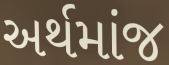
અર્થમાંજ